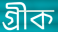
গ্ৰীক